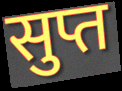
सुप्त